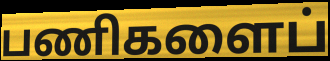
பணிகளைப்